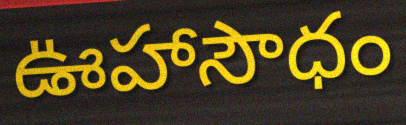
ఊహాసౌధం